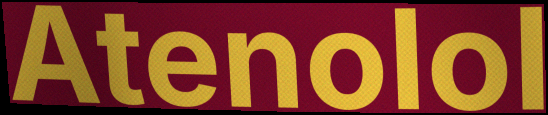
Atenolol